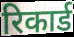
रिकार्ड